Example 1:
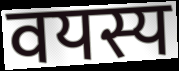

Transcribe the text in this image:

वयस्य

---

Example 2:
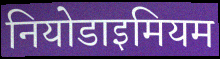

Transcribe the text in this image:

नियोडाइमियम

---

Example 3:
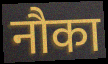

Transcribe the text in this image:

नौका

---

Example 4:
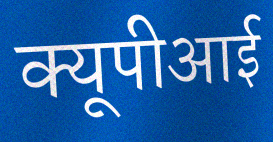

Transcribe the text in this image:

क्यूपीआई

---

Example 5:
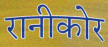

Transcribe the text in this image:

रानीकोर